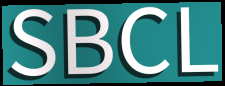
SBCL